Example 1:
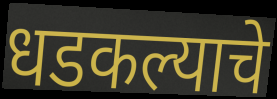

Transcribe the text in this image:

धडकल्याचे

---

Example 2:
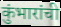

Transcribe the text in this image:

कुंभारांची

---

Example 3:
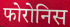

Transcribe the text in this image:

फोरोनिस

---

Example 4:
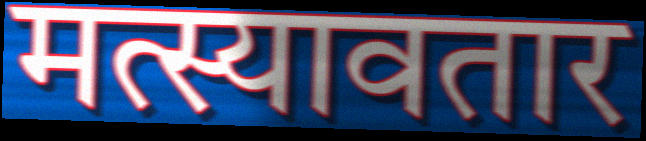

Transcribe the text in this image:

मत्स्यावतार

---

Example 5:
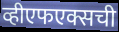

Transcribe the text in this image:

व्हीएफएक्सची